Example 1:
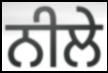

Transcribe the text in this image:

ਨੀਲੇ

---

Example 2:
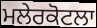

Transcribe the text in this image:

ਮਲੇਰਕੋਟਲਾ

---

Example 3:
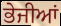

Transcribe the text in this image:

ਭੇਜੀਆਂ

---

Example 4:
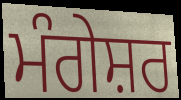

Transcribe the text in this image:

ਮੰਗੇਸ਼ਰ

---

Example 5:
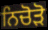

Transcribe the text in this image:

ਨਿਚੋੜੋ